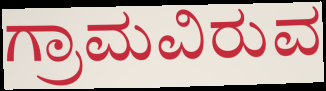
ಗ್ರಾಮವಿರುವ